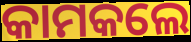
କାମକଲେ